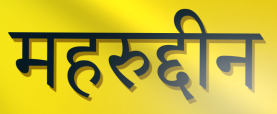
महरुद्दीन